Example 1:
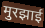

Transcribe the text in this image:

मुरझाई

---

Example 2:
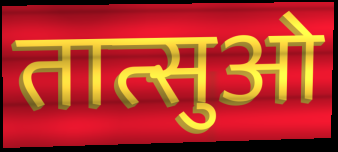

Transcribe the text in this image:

तात्सुओ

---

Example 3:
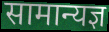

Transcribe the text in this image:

सामान्यज्ञ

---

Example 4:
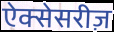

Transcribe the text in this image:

ऐक्सेसरीज़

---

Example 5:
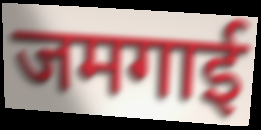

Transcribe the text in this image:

जमगाई